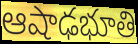
ఆషాఢభూతి